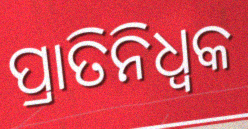
ପ୍ରାତିନିଧ୍ଵକ